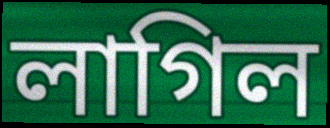
লাগিল